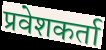
प्रवेशकर्ता